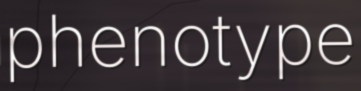
phenotype